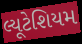
લ્યૂટેશિયમ